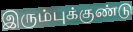
இரும்புக்குண்டு